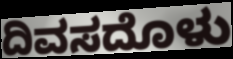
ದಿವಸದೊಳು